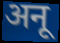
अनू